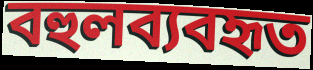
বহুলব্যবহৃত